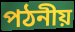
পঠনীয়